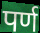
पर्ण